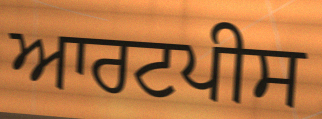
ਆਰਟਪੀਸ